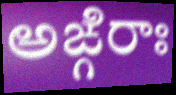
అఙ్గిరాః